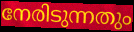
നേരിടുന്നതും